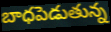
బాధపెడుతున్న